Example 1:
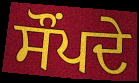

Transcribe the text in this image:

ਸੌਂਪਦੇ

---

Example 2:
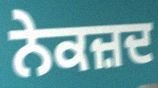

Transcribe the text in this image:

ਨੇਕਜ਼ਦ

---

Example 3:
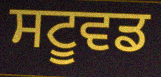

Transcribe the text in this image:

ਸਟੂਵਡ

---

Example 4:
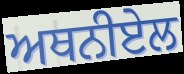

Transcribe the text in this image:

ਅਥਨੀਏਲ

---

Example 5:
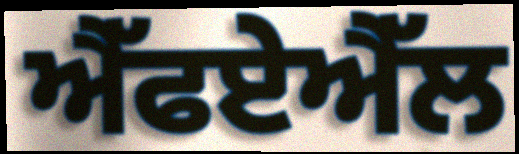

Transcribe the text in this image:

ਐੱਫਏਐੱਲ